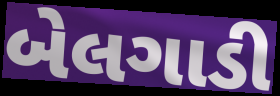
બેલગાડી